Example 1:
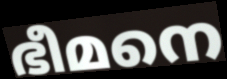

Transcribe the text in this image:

ഭീമനെ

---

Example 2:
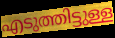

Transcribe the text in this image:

എടുത്തിട്ടുള്ള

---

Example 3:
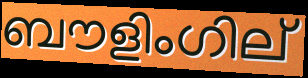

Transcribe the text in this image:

ബൗളിംഗില്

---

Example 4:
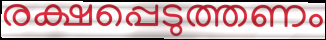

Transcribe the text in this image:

രക്ഷപ്പെടുത്തണം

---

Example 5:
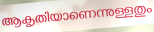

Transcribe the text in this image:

ആകൃതിയാണെന്നുള്ളതും